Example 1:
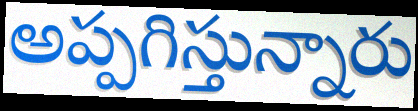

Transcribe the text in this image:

అప్పగిస్తున్నారు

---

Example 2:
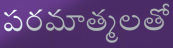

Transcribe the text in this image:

పరమాత్మలతో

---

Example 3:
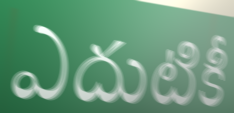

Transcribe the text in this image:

ఎదుటికీ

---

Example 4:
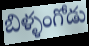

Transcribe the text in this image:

బిళ్ళంగోడు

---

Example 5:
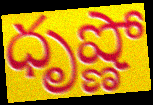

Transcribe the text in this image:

ధృష్ణో